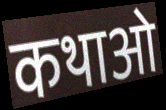
कथाओ